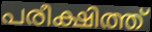
പരീക്ഷിത്ത്